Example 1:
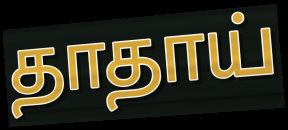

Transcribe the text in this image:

தாதாய்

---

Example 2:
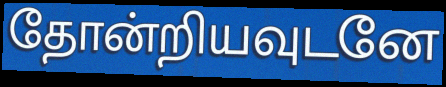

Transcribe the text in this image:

தோன்றியவுடனே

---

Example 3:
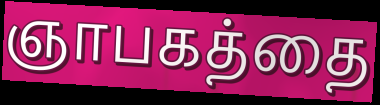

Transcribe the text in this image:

ஞாபகத்தை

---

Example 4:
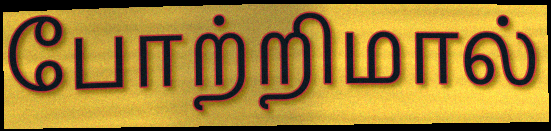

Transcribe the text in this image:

போற்றிமால்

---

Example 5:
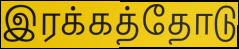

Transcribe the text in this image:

இரக்கத்தோடு